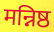
मन्निष्ठ